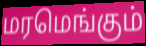
மரமெங்கும்